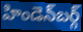
హిండెన్‌బర్గ్